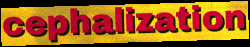
cephalization